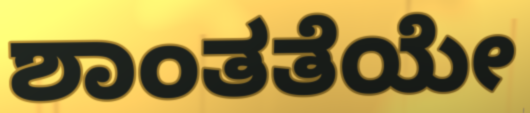
ಶಾಂತತೆಯೇ